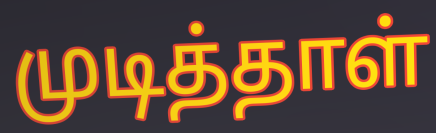
முடித்தாள்